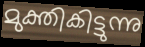
മുക്തികിട്ടുന്നു